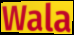
Wala